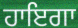
ਹਾਇਗਾ